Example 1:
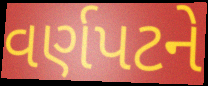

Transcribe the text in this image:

વર્ણપટને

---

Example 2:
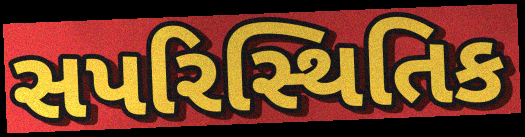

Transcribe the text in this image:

સપરિસ્થિતિક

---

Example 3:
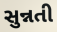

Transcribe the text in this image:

સુન્નતી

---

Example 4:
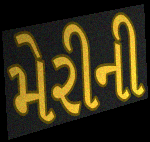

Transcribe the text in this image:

મેરીની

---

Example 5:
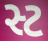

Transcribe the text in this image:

સ્ટ